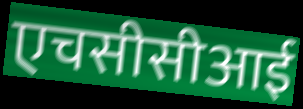
एचसीसीआई